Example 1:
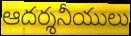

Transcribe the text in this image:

ఆదర్శనీయులు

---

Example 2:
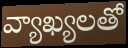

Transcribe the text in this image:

వ్యాఖ్యలతో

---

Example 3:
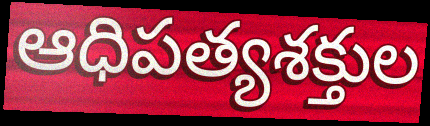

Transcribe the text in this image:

ఆధిపత్యశక్తుల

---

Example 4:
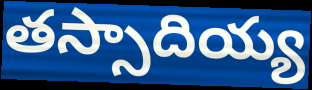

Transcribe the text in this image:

తస్సాదియ్య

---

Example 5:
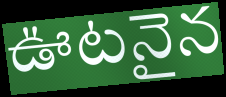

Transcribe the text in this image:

ఊటనైన